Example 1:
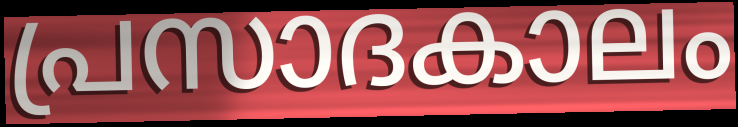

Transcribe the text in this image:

പ്രസാദകാലം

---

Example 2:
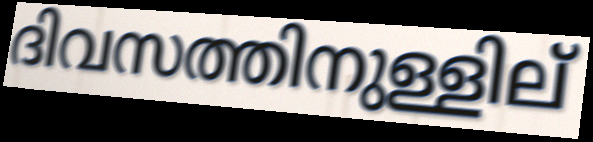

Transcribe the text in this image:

ദിവസത്തിനുള്ളില്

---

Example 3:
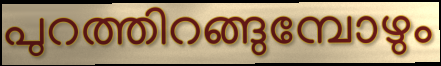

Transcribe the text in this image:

പുറത്തിറങ്ങുമ്പോഴും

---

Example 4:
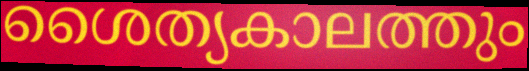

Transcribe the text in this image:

ശൈത്യകാലത്തും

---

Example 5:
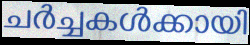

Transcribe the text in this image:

ചർച്ചകൾക്കായി